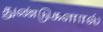
துண்டுகளால்